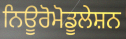
ਨਿਊਰੋਮੋਡੂਲੇਸ਼ਨ